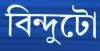
বিন্দুটো